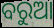
ବରୁଆ